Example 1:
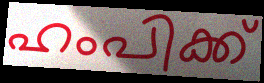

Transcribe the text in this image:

ഹംപിക്ക്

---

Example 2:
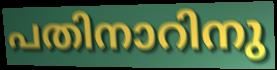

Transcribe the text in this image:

പതിനാറിനു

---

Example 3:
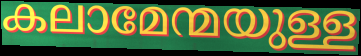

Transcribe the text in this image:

കലാമേന്മയുള്ള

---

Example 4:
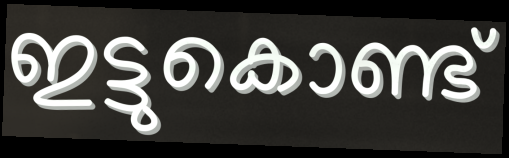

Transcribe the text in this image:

ഇട്ടുകൊണ്ട്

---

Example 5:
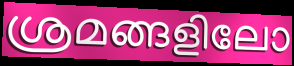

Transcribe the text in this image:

ശ്രമങ്ങളിലോ